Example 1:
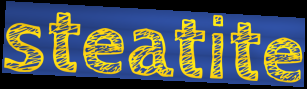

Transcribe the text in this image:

steatite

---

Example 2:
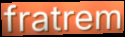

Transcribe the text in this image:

fratrem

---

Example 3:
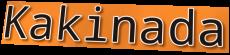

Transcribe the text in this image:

Kakinada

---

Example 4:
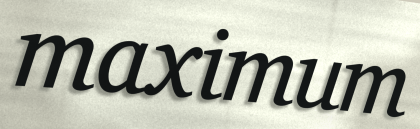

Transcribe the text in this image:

maximum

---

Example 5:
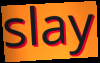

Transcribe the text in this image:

slay